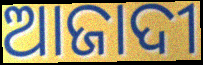
ଆଜାଦୀ